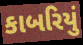
કાબરિયું